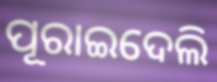
ପୂରାଇଦେଲି